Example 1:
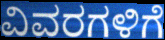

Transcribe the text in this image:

ವಿವರಗಳಿಗೆ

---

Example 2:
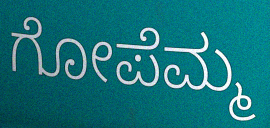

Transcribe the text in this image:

ಗೋಪೆಮ್ಮ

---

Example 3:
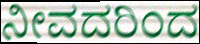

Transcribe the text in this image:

ನೀವದರಿಂದ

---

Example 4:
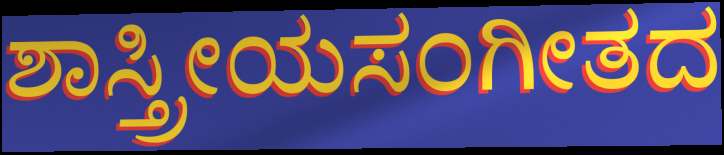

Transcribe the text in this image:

ಶಾಸ್ತ್ರೀಯಸಂಗೀತದ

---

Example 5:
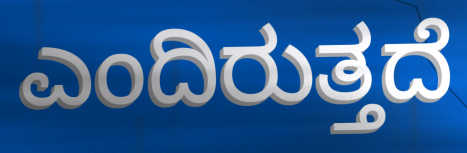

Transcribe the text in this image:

ಎಂದಿರುತ್ತದೆ